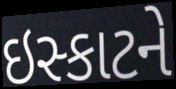
ઇસ્કાટને